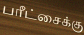
பரீட்சைக்கு